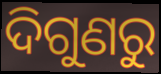
ଦିଗୁଣରୁ